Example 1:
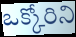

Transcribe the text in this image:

ఒక్కోరిని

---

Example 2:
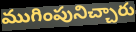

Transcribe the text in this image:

ముగింపునిచ్చారు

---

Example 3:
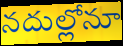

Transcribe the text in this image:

నదుల్లోనూ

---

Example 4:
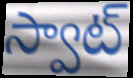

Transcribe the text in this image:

స్వాట్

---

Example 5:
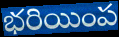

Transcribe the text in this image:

భరియింప